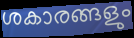
ശകാരങ്ങളും